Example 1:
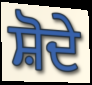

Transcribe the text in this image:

ਸ਼ੋਦੇ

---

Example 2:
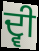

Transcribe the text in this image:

ਦ੍ਵੀ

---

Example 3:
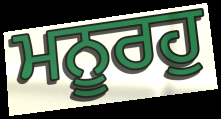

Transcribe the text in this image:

ਮਨੂਰਹੁ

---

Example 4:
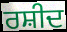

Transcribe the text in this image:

ਰਸ਼ੀਦ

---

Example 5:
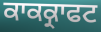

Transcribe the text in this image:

ਕਾਕਕ੍ਰਾਫਟ